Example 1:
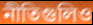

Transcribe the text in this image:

নীতিগুলিও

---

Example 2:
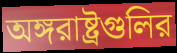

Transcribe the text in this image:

অঙ্গরাষ্ট্রগুলির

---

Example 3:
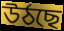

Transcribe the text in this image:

উঠছে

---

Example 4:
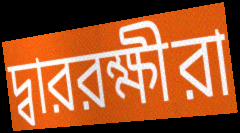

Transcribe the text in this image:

দ্বাররক্ষীরা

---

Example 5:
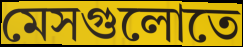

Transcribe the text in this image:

মেসগুলোতে